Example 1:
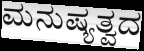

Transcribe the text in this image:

ಮನುಷ್ಯತ್ವದ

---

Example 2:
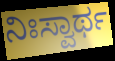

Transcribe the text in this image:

ನಿಃಸ್ವಾರ್ಥ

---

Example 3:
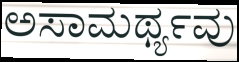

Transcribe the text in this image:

ಅಸಾಮರ್ಥ್ಯವು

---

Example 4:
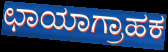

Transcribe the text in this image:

ಛಾಯಾಗ್ರಾಹಕ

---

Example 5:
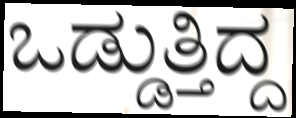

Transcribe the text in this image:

ಒಡ್ಡುತ್ತಿದ್ದ